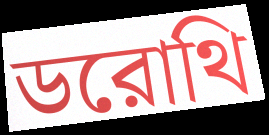
ডরোথি